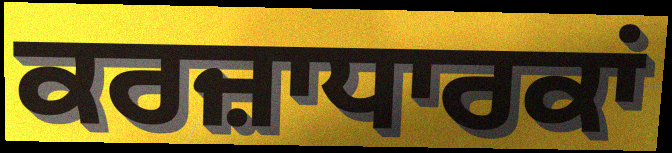
ਕਰਜ਼ਾਧਾਰਕਾਂ